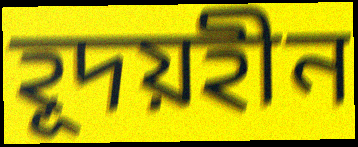
হূদয়হীন